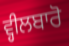
ਵ੍ਹੀਲਬਾਰੋ